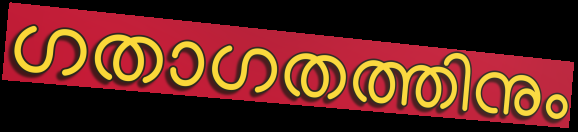
ഗതാഗതത്തിനും